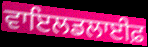
ਵਾਇਲਡਲਾਈਫ਼